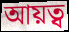
আয়ত্ব